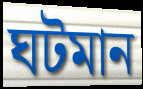
ঘটমান